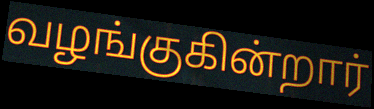
வழங்குகின்றார்